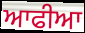
ਆਫੀਆ